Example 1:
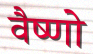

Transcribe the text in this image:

वैष्णो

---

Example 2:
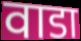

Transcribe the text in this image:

वाडा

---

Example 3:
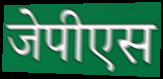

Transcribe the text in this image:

जेपीएस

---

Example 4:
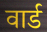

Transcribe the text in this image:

वार्ड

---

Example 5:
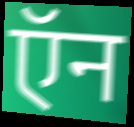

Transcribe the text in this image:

ऍन